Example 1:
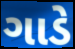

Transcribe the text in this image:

ગાડે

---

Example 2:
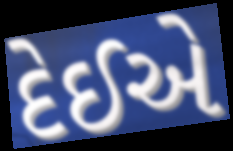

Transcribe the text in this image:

દેઈએ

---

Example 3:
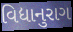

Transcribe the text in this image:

વિદ્યાનુરાગ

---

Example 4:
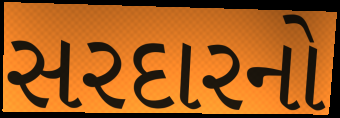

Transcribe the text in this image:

સરદારનો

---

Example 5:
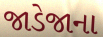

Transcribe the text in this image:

જાડેજાના